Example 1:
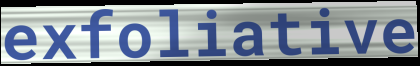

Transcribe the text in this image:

exfoliative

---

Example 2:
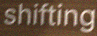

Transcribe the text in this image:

shifting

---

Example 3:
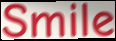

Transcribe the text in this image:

Smile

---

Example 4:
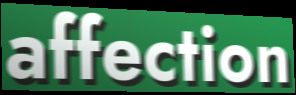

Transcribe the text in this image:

affection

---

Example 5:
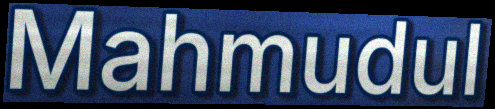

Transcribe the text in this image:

Mahmudul